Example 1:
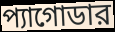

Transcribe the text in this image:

প্যাগোডার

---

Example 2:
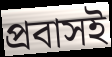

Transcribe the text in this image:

প্রবাসই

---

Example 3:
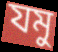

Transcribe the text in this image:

যমু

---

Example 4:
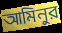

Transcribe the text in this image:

আমিনুর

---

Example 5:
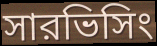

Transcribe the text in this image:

সারভিসিং